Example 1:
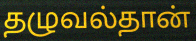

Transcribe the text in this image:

தழுவல்தான்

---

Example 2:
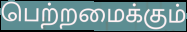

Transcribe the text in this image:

பெற்றமைக்கும்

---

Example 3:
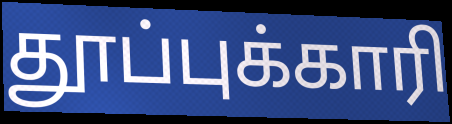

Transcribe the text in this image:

தூப்புக்காரி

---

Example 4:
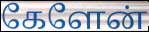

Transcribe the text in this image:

கேளேன்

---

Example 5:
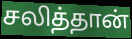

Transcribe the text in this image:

சலித்தான்